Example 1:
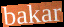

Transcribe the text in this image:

bakar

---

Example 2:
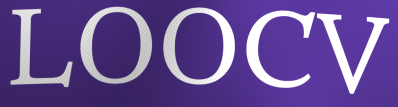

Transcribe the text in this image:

LOOCV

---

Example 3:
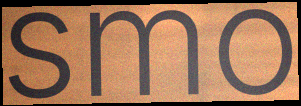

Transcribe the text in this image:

smo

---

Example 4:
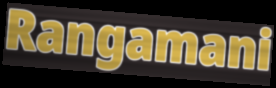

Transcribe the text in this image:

Rangamani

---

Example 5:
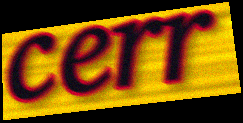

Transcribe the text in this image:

cerr